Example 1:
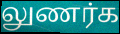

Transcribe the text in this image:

லுணர்க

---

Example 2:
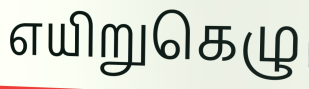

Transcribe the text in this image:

எயிறுகெழு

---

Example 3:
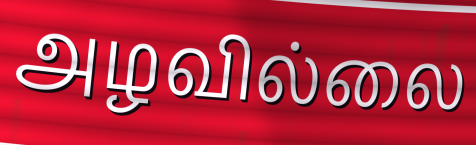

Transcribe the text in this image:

அழவில்லை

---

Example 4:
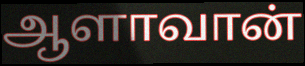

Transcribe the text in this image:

ஆளாவான்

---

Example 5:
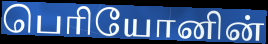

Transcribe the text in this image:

பெரியோனின்